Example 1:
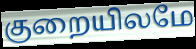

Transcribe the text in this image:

குறையிலமே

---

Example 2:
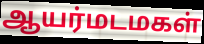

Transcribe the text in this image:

ஆயர்மடமகள்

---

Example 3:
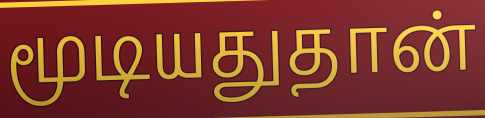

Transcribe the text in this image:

மூடியதுதான்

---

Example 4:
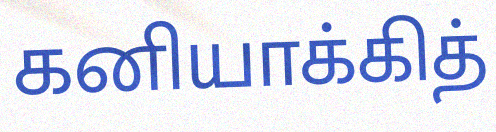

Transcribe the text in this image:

கனியாக்கித்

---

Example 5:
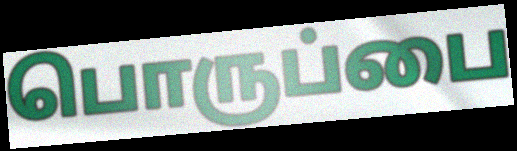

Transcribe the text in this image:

பொருப்பை